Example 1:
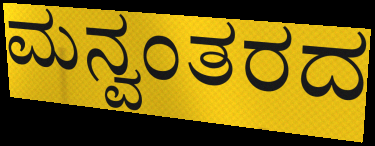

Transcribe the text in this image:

ಮನ್ವಂತರದ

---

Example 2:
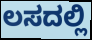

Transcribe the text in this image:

ಲಸದಲ್ಲಿ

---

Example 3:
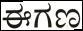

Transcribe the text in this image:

ಈಗಣ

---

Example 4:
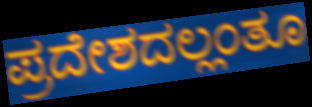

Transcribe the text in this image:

ಪ್ರದೇಶದಲ್ಲಂತೂ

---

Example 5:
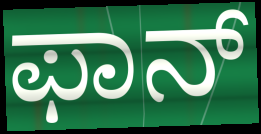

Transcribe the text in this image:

ಫಾನ್